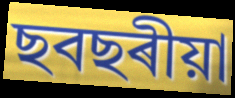
ছবছৰীয়া